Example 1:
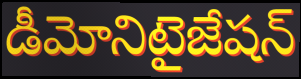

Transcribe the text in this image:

డీమోనిటైజేషన్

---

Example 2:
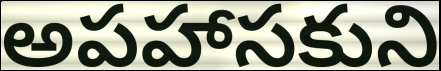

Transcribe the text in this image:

అపహాసకుని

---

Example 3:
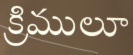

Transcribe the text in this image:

క్రిములూ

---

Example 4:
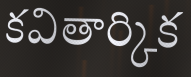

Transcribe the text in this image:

కవితార్కిక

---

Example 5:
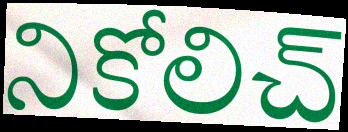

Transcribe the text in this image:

నికోలిచ్